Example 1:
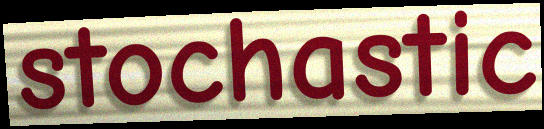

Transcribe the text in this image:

stochastic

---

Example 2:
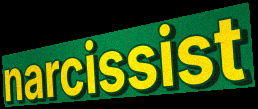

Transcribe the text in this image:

narcissist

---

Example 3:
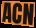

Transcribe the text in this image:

ACN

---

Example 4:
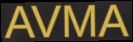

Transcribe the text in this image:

AVMA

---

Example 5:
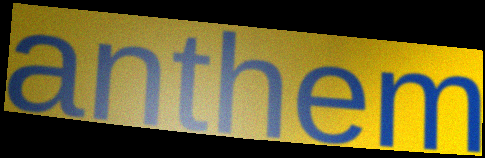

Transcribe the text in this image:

anthem